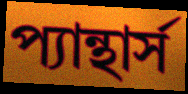
প্যান্থার্স